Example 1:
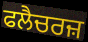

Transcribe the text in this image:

ਫਲੈਚਰਜ਼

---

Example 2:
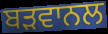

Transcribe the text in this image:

ਬੜਵਾਨਲ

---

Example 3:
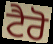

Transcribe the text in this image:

ਟੈਰੋ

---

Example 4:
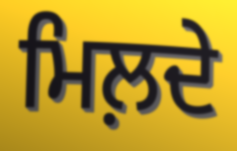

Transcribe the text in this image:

ਮਿਲ਼ਦੇ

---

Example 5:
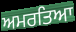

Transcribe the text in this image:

ਅਮਰਤਿਆ